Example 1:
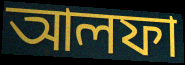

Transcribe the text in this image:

আলফা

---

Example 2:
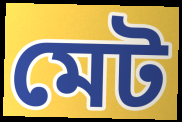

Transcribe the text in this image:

মেট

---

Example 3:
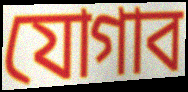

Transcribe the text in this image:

যোগাব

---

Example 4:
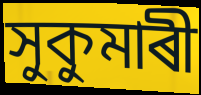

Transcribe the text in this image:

সুকুমাৰী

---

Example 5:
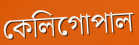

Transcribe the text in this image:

কেলিগোপাল